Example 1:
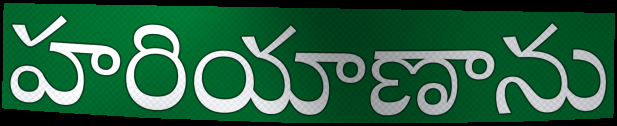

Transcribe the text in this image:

హరియాణాను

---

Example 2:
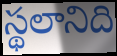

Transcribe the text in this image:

స్థలానిది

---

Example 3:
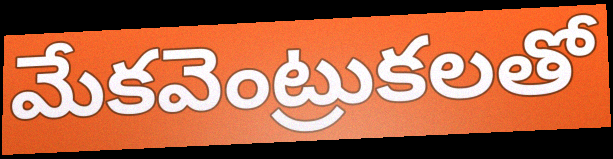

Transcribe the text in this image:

మేకవెంట్రుకలతో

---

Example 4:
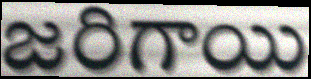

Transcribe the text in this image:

జరిగాయి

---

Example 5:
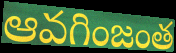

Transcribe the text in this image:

ఆవగింజంత